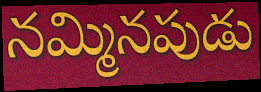
నమ్మినపుడు